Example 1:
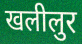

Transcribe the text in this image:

खलीलुर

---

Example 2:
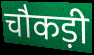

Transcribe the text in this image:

चौकड़ी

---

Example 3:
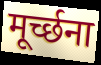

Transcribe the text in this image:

मूर्च्छना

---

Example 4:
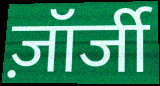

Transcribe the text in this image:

ज़ॉर्जी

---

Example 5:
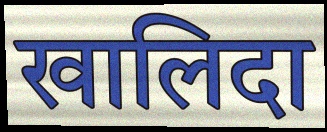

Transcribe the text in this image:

खालिदा